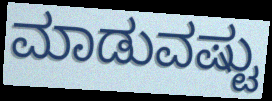
ಮಾಡುವಷ್ಟು